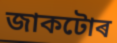
জাকটোৰ